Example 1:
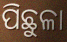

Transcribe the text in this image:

ପିଛୁଳା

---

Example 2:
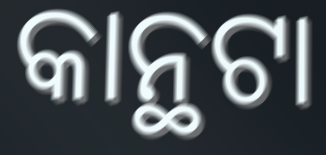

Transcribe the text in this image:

କାନ୍ଥଟା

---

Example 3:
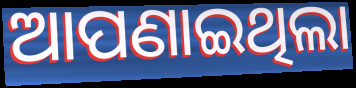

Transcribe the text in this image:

ଆପଣାଇଥିଲା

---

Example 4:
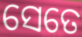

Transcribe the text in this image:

ସେତେ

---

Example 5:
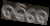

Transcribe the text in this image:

ବକିବେ